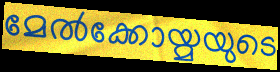
മേൽക്കോയ്മയുടെ